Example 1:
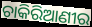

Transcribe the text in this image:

ଚାକିରିଆଣୀର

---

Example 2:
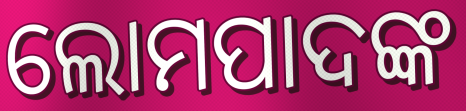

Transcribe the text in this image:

ଲୋମପାଦଙ୍କ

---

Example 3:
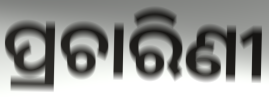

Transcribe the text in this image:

ପ୍ରଚାରିଣୀ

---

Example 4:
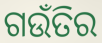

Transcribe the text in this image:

ଗଉଁତିର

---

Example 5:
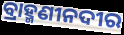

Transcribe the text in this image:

ବ୍ରାହ୍ମଣୀନଦୀର